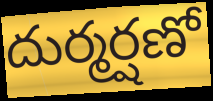
దుర్మర్షణో